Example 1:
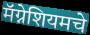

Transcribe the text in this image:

मॅग्नेशियमचे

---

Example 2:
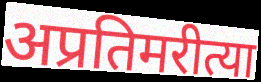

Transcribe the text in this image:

अप्रतिमरीत्या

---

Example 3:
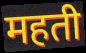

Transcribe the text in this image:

महती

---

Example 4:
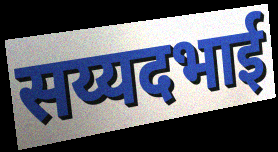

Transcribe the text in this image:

सय्यदभाई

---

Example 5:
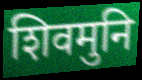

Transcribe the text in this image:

शिवमुनि